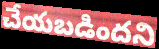
చేయబడిందని